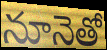
నూనెతో